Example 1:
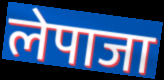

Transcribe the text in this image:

लेपाजा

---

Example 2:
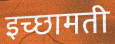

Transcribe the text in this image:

इच्छामती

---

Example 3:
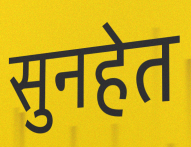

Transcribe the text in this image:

सुनहेत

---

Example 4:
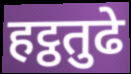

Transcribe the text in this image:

हट्ठतुढे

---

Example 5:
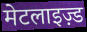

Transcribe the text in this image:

मेटलाइज़्ड